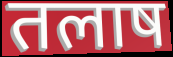
तलाष